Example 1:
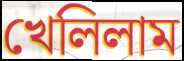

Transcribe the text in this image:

খেলিলাম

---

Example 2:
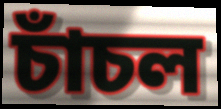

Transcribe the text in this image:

চাঁচল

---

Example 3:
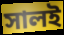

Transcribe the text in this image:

সালই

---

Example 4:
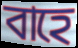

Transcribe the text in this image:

বাহে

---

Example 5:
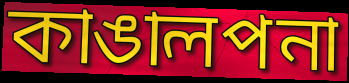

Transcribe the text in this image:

কাঙালপনা